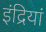
इंद्रियां